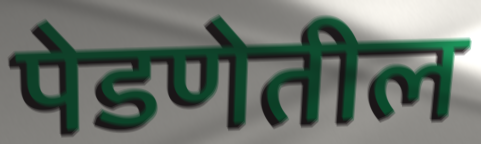
पेडणेतील